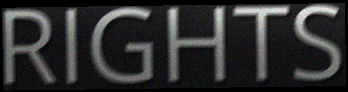
RIGHTS